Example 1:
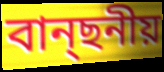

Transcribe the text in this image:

বান্ছনীয়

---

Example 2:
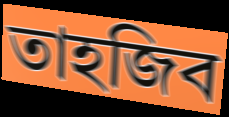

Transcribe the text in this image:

তাহজিব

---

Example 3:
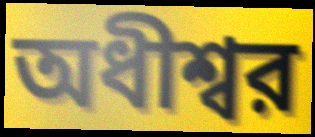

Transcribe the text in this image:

অধীশ্বর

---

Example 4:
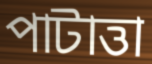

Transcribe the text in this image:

পাটাত্তা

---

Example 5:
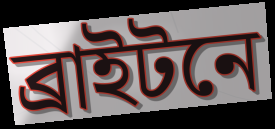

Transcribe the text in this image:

ব্রাইটনে